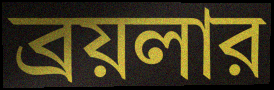
ব্রয়লার